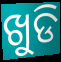
ଖୁଡି